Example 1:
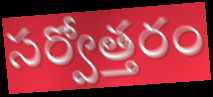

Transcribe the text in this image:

సర్వోత్తరం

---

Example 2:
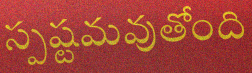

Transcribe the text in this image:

స్పష్టమవుతోంది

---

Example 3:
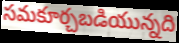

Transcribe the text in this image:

సమకూర్చబడియున్నది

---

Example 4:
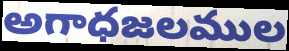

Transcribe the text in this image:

అగాధజలముల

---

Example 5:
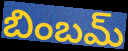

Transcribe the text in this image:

బింబమ్